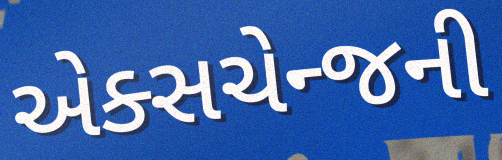
એક્સચેન્જની